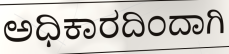
ಅಧಿಕಾರದಿಂದಾಗಿ